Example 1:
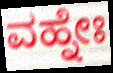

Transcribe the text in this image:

ವಹ್ನೇಃ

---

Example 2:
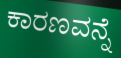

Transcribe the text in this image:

ಕಾರಣವನ್ನೆ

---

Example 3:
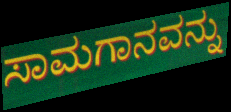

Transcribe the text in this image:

ಸಾಮಗಾನವನ್ನು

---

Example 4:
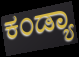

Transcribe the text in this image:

ಕಂಡ್ಯಾ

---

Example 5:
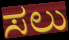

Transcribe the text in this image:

ಸಲು